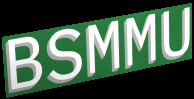
BSMMU